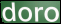
doro